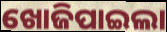
ଖୋଜିପାଇଲା